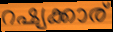
റഷ്യക്കാര്